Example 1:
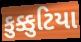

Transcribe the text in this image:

કુક્કુટિયા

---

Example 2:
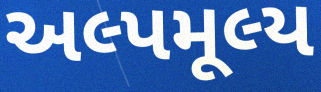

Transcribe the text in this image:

અલ્પમૂલ્ય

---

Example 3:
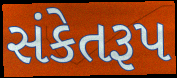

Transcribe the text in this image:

સંકેતરૂપ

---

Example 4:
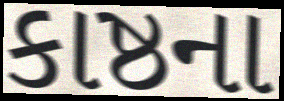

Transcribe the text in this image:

કાષ્ઠના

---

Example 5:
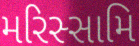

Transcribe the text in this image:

મરિસ્સામિ